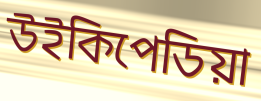
উইকিপেডিয়া